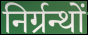
निर्ग्रन्थों